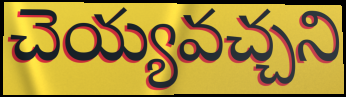
చెయ్యవచ్చని